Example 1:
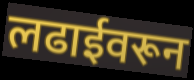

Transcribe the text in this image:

लढाईवरून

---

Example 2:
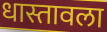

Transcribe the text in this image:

धास्तावला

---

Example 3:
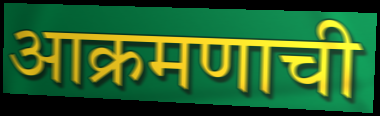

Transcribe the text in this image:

आक्रमणाची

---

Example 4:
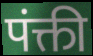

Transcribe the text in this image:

पंक्ती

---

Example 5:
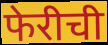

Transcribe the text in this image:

फेरीची